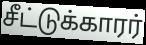
சீட்டுக்காரர்